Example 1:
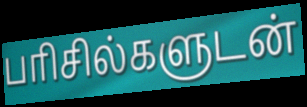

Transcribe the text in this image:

பரிசில்களுடன்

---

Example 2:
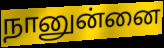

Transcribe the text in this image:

நானுன்னை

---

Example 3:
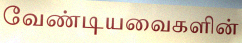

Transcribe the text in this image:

வேண்டியவைகளின்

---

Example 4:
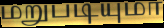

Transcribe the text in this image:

மறுபடியுமா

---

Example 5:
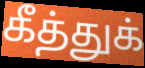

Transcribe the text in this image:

கீத்துக்